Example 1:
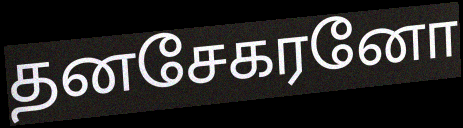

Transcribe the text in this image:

தனசேகரனோ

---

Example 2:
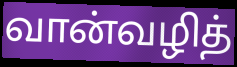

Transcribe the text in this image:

வான்வழித்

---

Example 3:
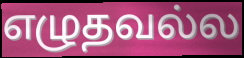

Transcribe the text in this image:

எழுதவல்ல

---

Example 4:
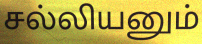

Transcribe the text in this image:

சல்லியனும்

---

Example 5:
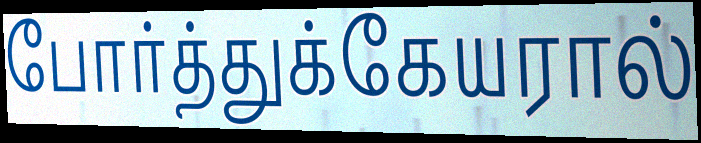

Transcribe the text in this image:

போர்த்துக்கேயரால்